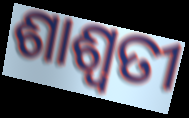
ଶାଶ୍ଵତୀ